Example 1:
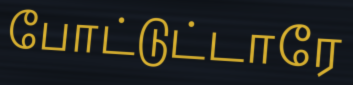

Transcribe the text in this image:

போட்டுட்டாரே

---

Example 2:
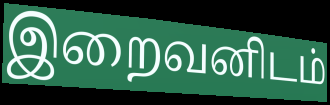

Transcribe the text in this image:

இறைவனிடம்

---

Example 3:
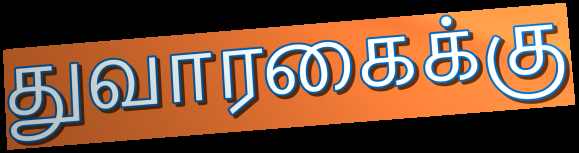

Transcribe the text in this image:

துவாரகைக்கு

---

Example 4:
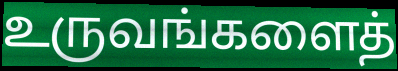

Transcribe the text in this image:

உருவங்களைத்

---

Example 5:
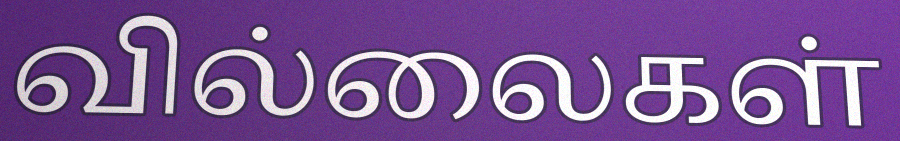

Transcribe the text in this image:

வில்லைகள்